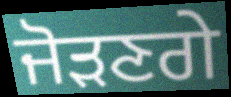
ਜੋੜਣਗੇ